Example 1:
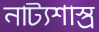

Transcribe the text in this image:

নাট্যশাস্ত্ৰ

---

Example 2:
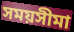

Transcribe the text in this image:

সময়সীমা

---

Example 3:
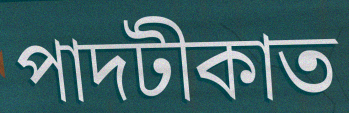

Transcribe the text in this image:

পাদটীকাত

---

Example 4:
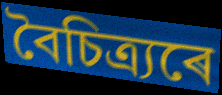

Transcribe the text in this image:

বৈচিত্ৰ্যৰে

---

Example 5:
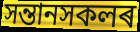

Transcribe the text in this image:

সন্তানসকলৰ